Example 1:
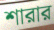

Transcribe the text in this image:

শারার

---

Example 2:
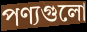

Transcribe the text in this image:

পণ্যগুলো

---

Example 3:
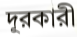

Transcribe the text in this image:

দূরকারী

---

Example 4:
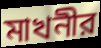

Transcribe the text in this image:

মাখনীর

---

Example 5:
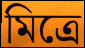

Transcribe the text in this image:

মিত্রে